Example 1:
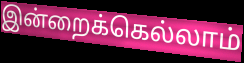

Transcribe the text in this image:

இன்றைக்கெல்லாம்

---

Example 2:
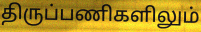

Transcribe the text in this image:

திருப்பணிகளிலும்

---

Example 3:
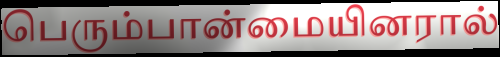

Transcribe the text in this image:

பெரும்பான்மையினரால்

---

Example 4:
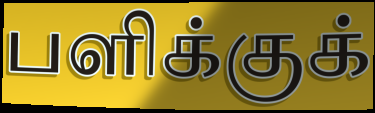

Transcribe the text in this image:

பளிக்குக்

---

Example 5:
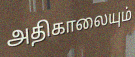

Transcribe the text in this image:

அதிகாலையும்